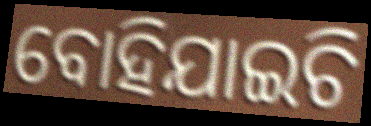
ବୋହିଯାଇଚି